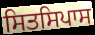
ਸਿਤਸਿਪਾਸ